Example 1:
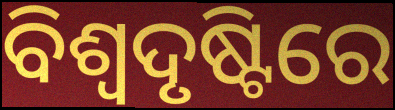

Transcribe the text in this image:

ବିଶ୍ଵଦୃଷ୍ଟିରେ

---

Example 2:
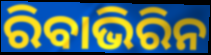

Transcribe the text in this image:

ରିବାଭିରିନ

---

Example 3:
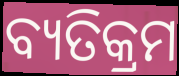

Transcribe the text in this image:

ବ୍ୟତିକ୍ରମ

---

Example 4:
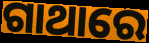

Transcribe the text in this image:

ଗାଥାରେ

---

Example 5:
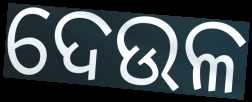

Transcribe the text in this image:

ଦେଉଳ